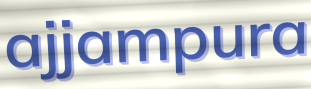
ajjampura